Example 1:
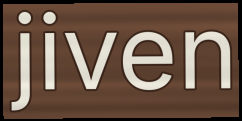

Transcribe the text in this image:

jiven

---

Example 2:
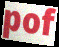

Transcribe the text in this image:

pof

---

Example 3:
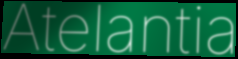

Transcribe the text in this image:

Atelantia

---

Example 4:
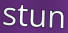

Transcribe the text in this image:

stun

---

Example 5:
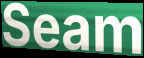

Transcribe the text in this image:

Seam